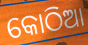
କୋଠିଆ